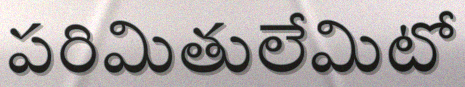
పరిమితులేమిటో